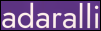
adaralli